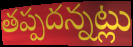
తప్పదన్నట్లు